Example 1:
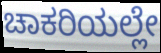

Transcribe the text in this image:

ಚಾಕರಿಯಲ್ಲೇ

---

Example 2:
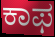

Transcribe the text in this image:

ಕಾಫ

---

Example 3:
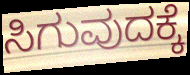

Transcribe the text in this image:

ಸಿಗುವುದಕ್ಕೆ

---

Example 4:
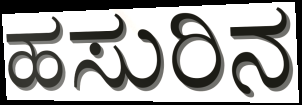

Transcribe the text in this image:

ಹಸುರಿನ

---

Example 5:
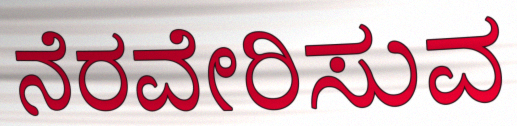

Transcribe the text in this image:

ನೆರವೇರಿಸುವ